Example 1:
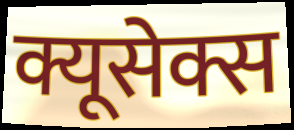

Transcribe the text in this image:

क्यूसेक्स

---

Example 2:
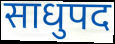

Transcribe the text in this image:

साधुपद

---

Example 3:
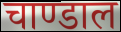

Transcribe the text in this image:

चाण्डाल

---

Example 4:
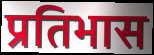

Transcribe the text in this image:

प्रतिभास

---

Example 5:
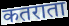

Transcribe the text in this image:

कतराता